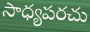
సాధ్యపరచు